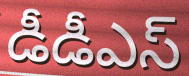
డీడీఎస్